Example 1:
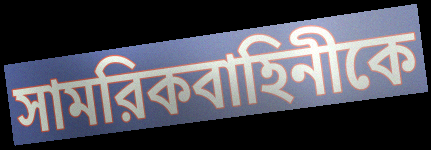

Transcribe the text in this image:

সামরিকবাহিনীকে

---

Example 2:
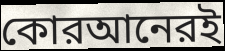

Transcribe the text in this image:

কোরআনেরই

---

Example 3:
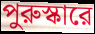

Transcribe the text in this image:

পুরুস্কারে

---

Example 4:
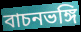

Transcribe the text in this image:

বাচনভঙ্গি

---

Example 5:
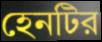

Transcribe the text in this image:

হেনটির